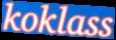
koklass